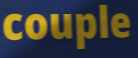
couple